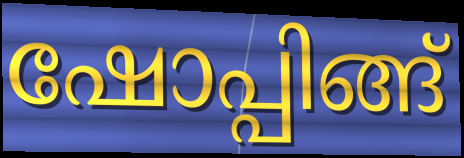
ഷോപ്പിങ്ങ്